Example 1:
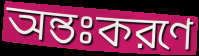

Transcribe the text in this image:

অন্তঃকরণে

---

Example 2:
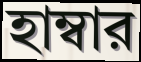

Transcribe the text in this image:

হাম্বার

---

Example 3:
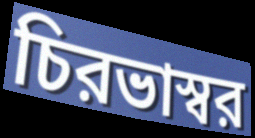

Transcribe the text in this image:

চিরভাস্বর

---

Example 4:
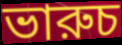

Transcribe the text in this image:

ভারুচ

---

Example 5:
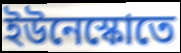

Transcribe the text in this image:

ইউনেস্কোতে